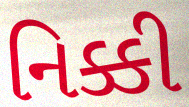
નિક્કી